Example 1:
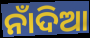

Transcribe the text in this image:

ନାଁଦିଆ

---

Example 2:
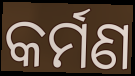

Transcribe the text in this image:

କର୍ମଣ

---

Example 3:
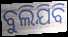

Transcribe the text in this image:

ବୁଲିଯିବି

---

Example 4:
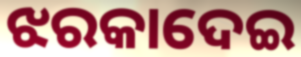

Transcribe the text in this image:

ଝରକାଦେଇ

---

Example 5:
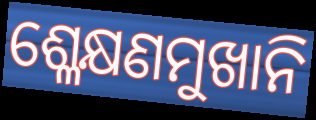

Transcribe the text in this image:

ଶ୍ଳେକ୍ଷଣମୁଖାନି